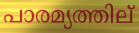
പാരമ്യത്തില്